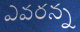
ఎవరన్న